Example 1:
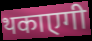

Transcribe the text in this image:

थकाएगी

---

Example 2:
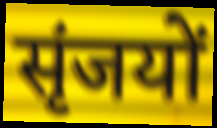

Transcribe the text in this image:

सृंजयों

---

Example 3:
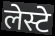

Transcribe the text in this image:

लेस्टे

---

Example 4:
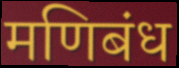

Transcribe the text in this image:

मणिबंध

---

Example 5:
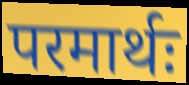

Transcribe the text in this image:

परमार्थः